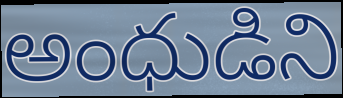
అంధుడిని